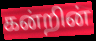
கன்றின்